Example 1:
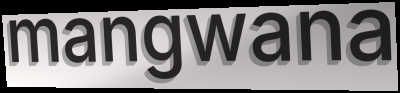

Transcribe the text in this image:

mangwana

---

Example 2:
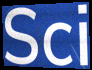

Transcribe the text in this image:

Sci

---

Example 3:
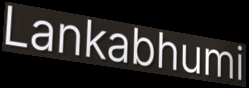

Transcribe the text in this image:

Lankabhumi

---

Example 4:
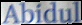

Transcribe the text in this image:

Abidul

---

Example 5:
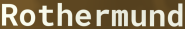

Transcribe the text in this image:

Rothermund